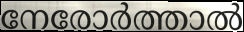
നേരോർത്താൽ